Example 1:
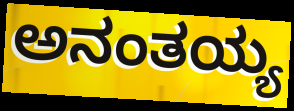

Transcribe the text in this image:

ಅನಂತಯ್ಯ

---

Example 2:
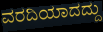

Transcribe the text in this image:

ವರದಿಯಾದದ್ದು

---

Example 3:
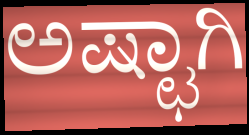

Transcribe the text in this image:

ಅಷ್ಟಾಗಿ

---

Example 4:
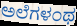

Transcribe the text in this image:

ಅಲೆಗಳಂಥ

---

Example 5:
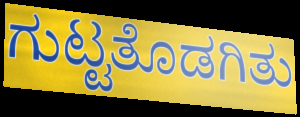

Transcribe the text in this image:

ಗುಟ್ಟತೊಡಗಿತು